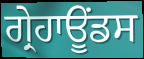
ਗ੍ਰੇਹਾਊਂਡਸ